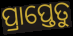
ପ୍ରାପ୍ତେତୁ